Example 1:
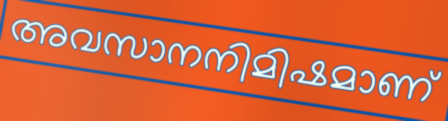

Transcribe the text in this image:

അവസാനനിമിഷമാണ്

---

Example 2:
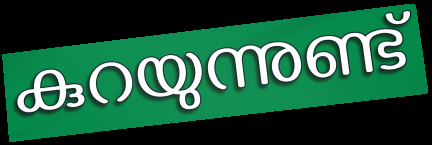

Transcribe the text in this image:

കുറയുന്നുണ്ട്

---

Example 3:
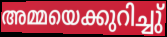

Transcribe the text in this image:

അമ്മയെക്കുറിച്ചു്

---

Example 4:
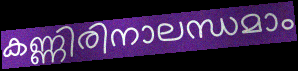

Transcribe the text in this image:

കണ്ണിരിനാലന്ധമാം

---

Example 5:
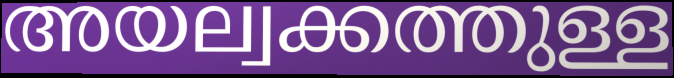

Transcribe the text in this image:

അയല്വക്കത്തുള്ള